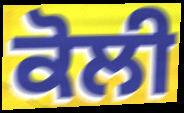
ਕੋਲੀ